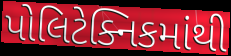
પોલિટેક્નિકમાંથી